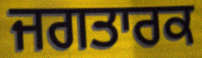
ਜਗਤਾਰਕ